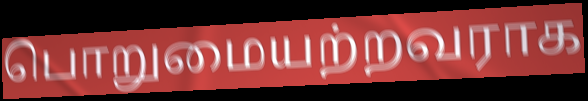
பொறுமையற்றவராக